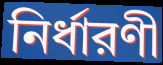
নির্ধারণী